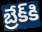
బ్రేక్‌కి